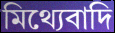
মিথ্যেবাদি